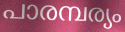
പാരമ്പര്യം